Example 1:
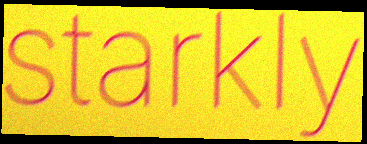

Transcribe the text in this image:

starkly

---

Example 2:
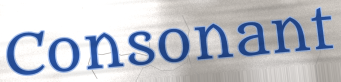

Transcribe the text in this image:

Consonant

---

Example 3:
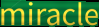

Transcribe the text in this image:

miracle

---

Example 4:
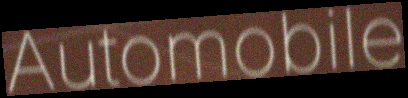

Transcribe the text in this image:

Automobile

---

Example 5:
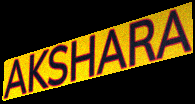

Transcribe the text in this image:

AKSHARA